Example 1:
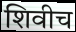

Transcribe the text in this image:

शिवीच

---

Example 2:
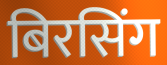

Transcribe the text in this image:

बिरसिंग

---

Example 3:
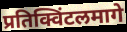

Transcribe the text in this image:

प्रतिक्विंटलमागे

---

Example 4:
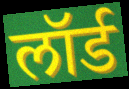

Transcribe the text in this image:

लॉर्ड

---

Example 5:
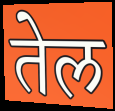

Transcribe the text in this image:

तेल